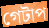
গেটাপ